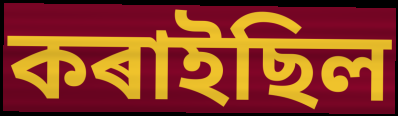
কৰাইছিল